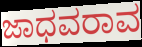
ಜಾಧವರಾವ